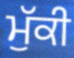
ਮੁੱਕੀ